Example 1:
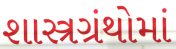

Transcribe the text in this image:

શાસ્ત્રગ્રંથોમાં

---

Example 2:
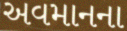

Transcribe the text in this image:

અવમાનના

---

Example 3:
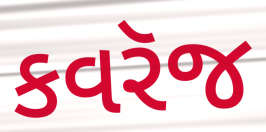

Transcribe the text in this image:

કવરૅજ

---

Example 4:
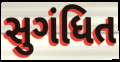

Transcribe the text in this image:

સુગંધિત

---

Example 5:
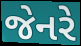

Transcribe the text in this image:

જેનરે